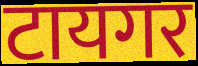
टायगर